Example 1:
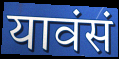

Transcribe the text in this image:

यावंसं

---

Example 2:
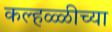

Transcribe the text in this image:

कल्हळ्ळीच्या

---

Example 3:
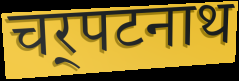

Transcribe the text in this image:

चर्पटनाथ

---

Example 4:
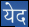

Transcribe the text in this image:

येद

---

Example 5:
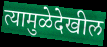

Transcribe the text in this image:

त्यामुळेदेखील